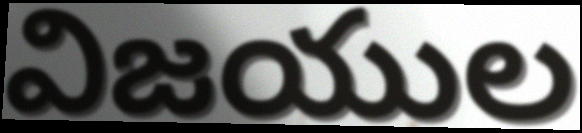
విజయుల